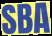
SBA